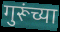
गुरूंच्या